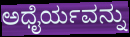
ಅಧೈರ್ಯವನ್ನು